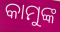
କାମୁଙ୍କ